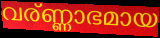
വര്ണ്ണാഭമായ